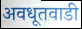
अवधूतवाडी